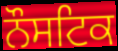
ਨੌਸਟਿਕ